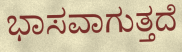
ಭಾಸವಾಗುತ್ತದೆ